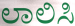
ಲಾಲಿಸಿ